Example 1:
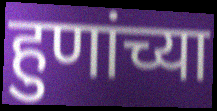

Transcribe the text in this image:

हुणांच्या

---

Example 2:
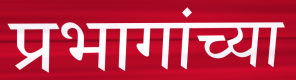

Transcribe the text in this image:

प्रभागांच्या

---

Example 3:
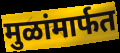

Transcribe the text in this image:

मुळांमार्फत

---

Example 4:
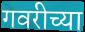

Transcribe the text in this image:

गवरीच्या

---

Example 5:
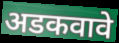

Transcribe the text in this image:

अडकवावे